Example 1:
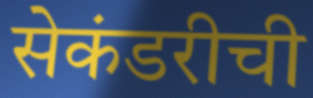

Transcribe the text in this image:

सेकंडरीची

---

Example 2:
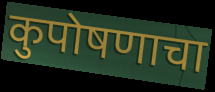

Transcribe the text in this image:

कुपोषणाचा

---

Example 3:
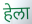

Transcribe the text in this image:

हेला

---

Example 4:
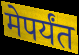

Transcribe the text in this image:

मेपर्यंत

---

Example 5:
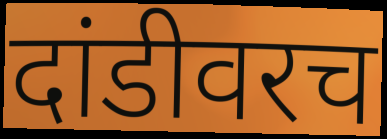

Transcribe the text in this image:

दांडीवरच